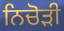
ਨਿਚੋੜੀ